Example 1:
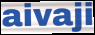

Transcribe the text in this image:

aivaji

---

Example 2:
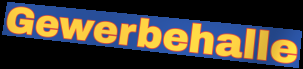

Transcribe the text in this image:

Gewerbehalle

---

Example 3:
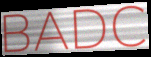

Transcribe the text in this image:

BADC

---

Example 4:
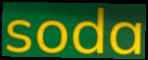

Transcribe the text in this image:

soda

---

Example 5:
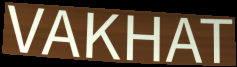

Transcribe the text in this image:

VAKHAT